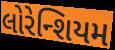
લોરેન્શિયમ